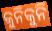
କୁନିକୁନି